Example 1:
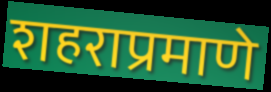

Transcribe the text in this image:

शहराप्रमाणे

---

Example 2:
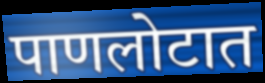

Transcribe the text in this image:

पाणलोटात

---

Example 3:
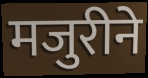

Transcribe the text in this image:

मजुरीने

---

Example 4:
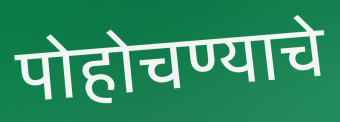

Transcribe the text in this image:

पोहोचण्याचे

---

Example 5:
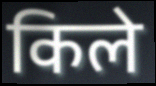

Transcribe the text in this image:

किले